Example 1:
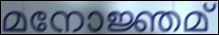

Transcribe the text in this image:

മനോജ്ഞമ്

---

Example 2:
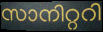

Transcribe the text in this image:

സാനിറ്ററി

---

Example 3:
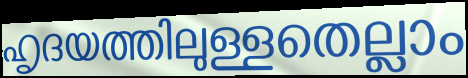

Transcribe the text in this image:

ഹൃദയത്തിലുള്ളതെല്ലാം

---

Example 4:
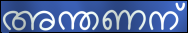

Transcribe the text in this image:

അന്തണന്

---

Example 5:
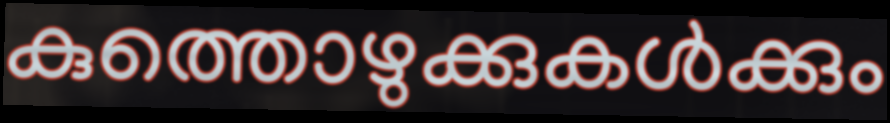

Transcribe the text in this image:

കുത്തൊഴുക്കുകൾക്കും